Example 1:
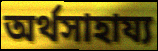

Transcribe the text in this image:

অর্থসাহায্য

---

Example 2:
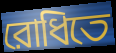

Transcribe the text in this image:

রোধিতে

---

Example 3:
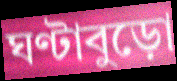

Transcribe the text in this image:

ঘণ্টাবুড়ো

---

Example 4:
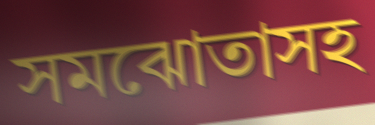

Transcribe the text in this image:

সমঝোতাসহ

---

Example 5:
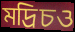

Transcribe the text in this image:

মদ্রিচও